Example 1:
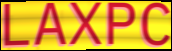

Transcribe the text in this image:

LAXPC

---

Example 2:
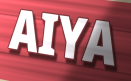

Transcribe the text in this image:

AIYA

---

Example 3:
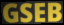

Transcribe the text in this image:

GSEB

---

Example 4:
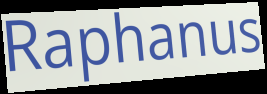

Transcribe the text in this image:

Raphanus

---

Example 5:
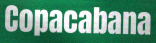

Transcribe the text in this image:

Copacabana